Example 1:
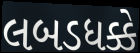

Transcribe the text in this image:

લબડધક્કે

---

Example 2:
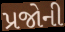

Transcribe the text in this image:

પ્રજોની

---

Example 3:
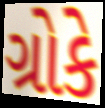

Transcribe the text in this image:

ગ્રોકે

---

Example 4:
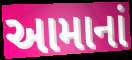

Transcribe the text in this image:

આમાનાં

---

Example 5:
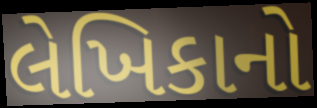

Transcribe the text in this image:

લેખિકાનો